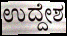
ಉದ್ದೇಶ